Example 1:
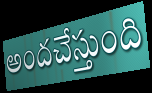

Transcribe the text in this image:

అందచేస్తుంది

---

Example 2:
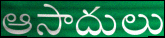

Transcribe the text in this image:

ఆసాదులు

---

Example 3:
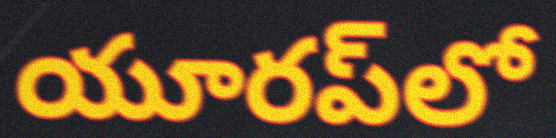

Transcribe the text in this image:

యూరప్‌లో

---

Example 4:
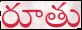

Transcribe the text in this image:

రూతు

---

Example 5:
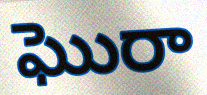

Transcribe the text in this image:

ఘొరా